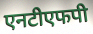
एनटीएफपी